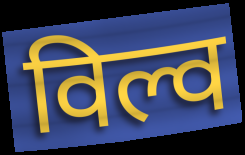
विल्व